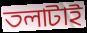
তলাটাই